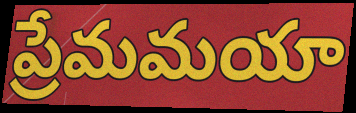
ప్రేమమయా